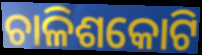
ଚାଳିଶକୋଟି